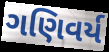
ગણિવર્ય